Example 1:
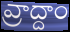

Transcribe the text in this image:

వ్రాద్దాం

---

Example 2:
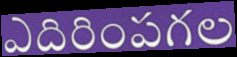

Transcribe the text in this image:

ఎదిరింపగల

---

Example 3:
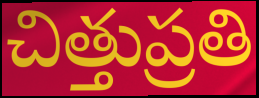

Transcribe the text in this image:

చిత్తుప్రతి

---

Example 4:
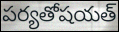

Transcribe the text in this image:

పర్యతోషయత్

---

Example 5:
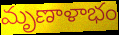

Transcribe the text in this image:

మృణాళాభం